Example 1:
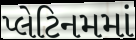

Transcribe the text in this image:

પ્લેટિનમમાં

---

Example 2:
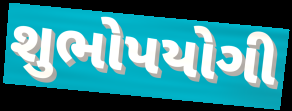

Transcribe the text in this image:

શુભોપયોગી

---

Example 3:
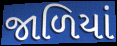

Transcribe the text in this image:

જાળિયાં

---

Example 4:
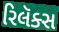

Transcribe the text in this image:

રિલૅક્સ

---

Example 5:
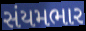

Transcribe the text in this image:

સંયમભાર